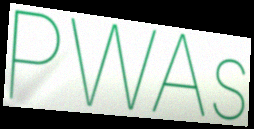
PWAs